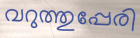
വറുത്തുപ്പേരി